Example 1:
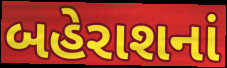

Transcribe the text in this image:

બહેરાશનાં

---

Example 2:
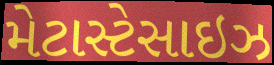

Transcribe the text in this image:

મેટાસ્ટેસાઇઝ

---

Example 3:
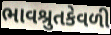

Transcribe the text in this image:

ભાવશ્રુતકેવળી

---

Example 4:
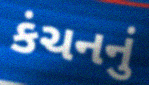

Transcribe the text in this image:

કંચનનું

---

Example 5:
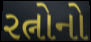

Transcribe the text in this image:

રત્નોનો